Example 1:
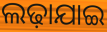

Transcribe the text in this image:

ଲଢ଼ାଯାଇ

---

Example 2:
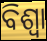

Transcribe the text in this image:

ବିଶ୍ବା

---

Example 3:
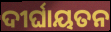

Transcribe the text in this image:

ଦୀର୍ଘାୟତନ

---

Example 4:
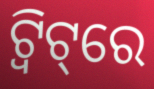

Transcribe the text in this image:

ଟ୍ବିଟ୍‌ରେ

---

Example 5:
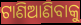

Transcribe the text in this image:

ଟାଣିଆଣିବାକୁ